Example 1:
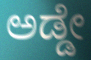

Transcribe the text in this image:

ಅಡ್ಡೇ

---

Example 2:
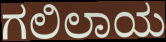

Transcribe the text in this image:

ಗಲಿಲಾಯ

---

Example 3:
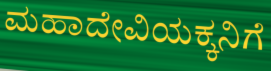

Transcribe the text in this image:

ಮಹಾದೇವಿಯಕ್ಕನಿಗೆ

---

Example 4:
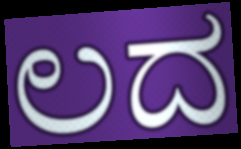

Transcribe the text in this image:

ಲದ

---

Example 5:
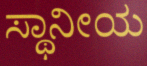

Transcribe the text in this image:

ಸ್ಥಾನೀಯ